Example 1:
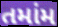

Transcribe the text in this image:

તમાંમ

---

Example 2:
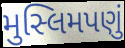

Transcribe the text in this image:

મુસ્લિમપણું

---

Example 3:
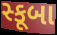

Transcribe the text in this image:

સ્કૂબા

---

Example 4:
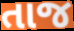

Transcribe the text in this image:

તાજ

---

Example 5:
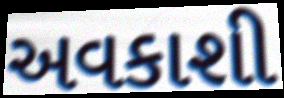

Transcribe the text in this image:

અવકાશી